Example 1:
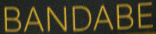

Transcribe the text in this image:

BANDABE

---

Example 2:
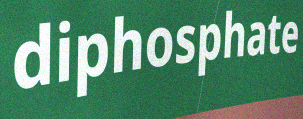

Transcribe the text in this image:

diphosphate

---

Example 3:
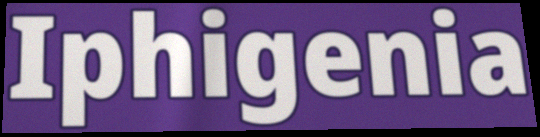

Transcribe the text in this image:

Iphigenia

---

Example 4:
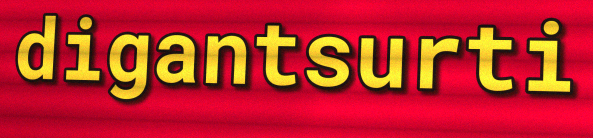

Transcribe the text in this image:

digantsurti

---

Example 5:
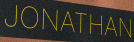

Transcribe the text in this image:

JONATHAN